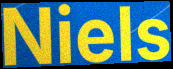
Niels